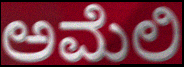
ಅಮೆಲಿ